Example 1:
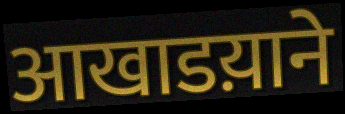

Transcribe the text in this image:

आखाडय़ाने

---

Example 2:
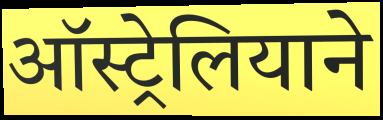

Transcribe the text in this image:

ऑस्ट्रेलियाने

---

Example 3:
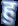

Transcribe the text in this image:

हु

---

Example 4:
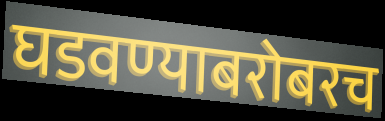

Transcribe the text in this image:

घडवण्याबरोबरच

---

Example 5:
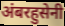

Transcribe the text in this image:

अंबरहुसेनी